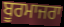
ਬੂਰਮਾਜਰਾ